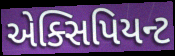
એક્સિપિયન્ટ